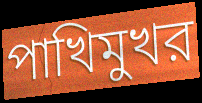
পাখিমুখর